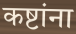
कष्टांना